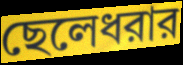
ছেলেধরার